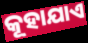
କୂହାଯାଏ